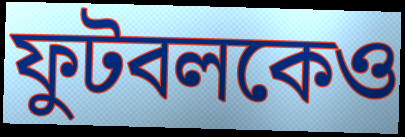
ফুটবলকেও